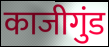
काजीगुंड